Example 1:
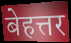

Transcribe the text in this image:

बेहत्तर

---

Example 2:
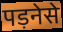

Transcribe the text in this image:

पड़नेसे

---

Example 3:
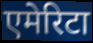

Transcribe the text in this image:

एमेरिटा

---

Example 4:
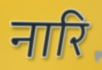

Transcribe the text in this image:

नारि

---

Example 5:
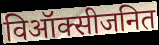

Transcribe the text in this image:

विऑक्सीजनित